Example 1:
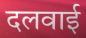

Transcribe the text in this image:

दलवाई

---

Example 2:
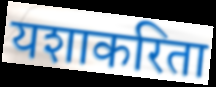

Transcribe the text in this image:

यशाकरिता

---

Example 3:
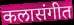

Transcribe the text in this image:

कलासंगीत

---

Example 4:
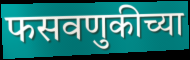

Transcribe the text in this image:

फसवणुकीच्या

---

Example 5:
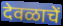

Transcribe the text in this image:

देवळाचें